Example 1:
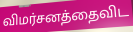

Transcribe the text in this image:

விமர்சனத்தைவிட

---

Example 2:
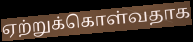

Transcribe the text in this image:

ஏற்றுக்கொள்வதாக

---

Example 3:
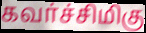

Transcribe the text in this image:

கவர்ச்சிமிகு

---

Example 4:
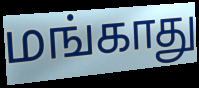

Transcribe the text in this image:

மங்காது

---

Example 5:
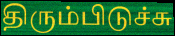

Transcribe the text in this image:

திரும்பிடுச்சு